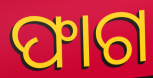
ଫାଗ